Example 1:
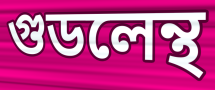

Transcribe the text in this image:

গুডলেন্থ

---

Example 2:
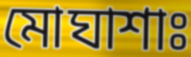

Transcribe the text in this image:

মোঘাশাঃ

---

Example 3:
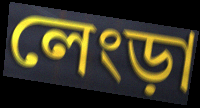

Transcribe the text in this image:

লেংড়া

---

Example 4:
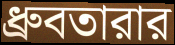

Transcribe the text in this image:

ধ্রুবতারার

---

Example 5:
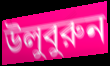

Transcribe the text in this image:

উলুবুরুন